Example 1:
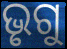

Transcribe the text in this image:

ଭୃଗୁ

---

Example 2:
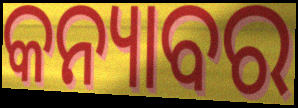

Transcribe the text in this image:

କନ୍ୟାବର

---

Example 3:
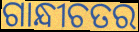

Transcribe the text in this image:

ଗାନ୍ଧୀଚତର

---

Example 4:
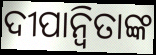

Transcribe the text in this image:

ଦୀପାନ୍ୱିତାଙ୍କ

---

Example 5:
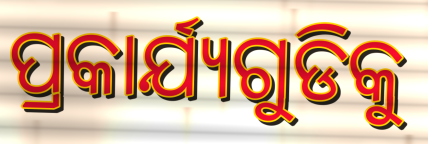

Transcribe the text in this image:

ପ୍ରକାର୍ଯ୍ୟଗୁଡିକୁ